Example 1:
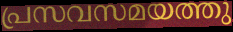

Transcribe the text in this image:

പ്രസവസമയത്തു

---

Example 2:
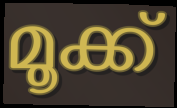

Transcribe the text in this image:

മൂക്ക്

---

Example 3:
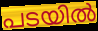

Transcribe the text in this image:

പടയിൽ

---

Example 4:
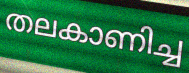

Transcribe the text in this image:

തലകാണിച്ച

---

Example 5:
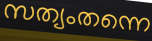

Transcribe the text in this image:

സത്യംതന്നെ